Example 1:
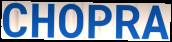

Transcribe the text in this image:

CHOPRA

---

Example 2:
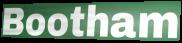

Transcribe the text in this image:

Bootham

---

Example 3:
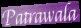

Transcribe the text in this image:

Patrawala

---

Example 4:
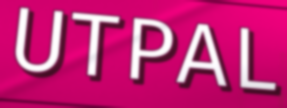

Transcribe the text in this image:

UTPAL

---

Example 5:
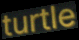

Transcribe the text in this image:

turtle